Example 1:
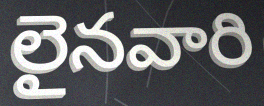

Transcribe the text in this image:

లైనవారి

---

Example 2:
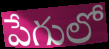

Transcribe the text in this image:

పేగులో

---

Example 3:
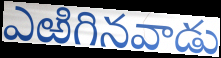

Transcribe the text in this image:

ఎఱిగినవాడు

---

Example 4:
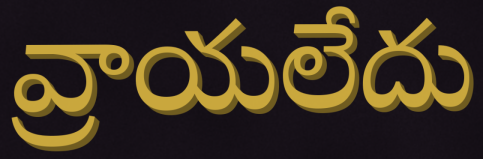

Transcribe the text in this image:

వ్రాయలేదు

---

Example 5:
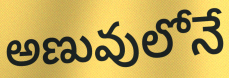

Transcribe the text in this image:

అణువులోనే